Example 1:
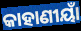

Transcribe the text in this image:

କାହାଣୀୟାଁ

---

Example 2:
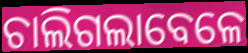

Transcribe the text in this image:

ଚାଲିଗଲାବେଳେ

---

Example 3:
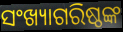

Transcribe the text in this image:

ସଂଖ୍ୟାଗରିଷ୍ଠଙ୍କ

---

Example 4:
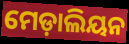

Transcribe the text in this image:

ମେଡ଼ାଲିୟନ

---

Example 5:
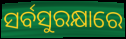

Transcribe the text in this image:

ସର୍ବସୁରକ୍ଷାରେ